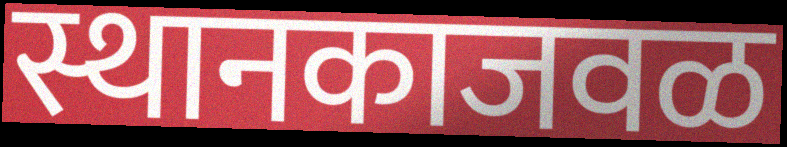
स्थानकाजवळ